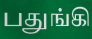
பதுங்கி